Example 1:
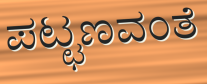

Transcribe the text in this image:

ಪಟ್ಟಣವಂತೆ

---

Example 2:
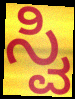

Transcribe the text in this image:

ಸ್ವಿ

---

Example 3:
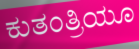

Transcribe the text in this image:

ಕುತಂತ್ರಿಯೂ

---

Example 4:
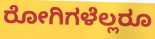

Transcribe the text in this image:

ರೋಗಿಗಳೆಲ್ಲರೂ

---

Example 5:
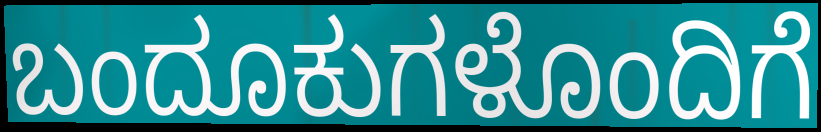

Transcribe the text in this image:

ಬಂದೂಕುಗಳೊಂದಿಗೆ